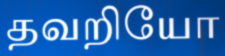
தவறியோ